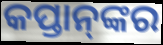
କପ୍ତାନ୍‌ଙ୍କର